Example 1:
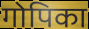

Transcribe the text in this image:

गोपिका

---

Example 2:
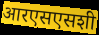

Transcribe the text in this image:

आरएसएसशी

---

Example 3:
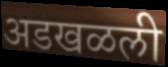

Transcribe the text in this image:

अडखळली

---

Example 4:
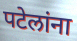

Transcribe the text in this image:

पटेलांना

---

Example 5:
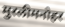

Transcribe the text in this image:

मुरलीमनोहर